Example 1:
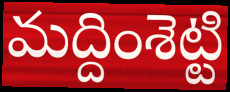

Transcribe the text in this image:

మద్దింశెట్టి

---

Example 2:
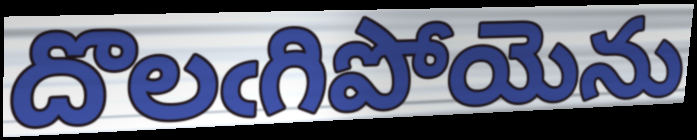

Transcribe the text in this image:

దొలఁగిపోయెను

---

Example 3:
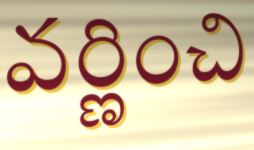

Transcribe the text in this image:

వర్ణించి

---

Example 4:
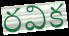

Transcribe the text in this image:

రవిక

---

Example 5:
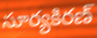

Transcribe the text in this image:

సూర్యకిరణ్